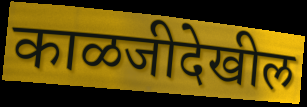
काळजीदेखील